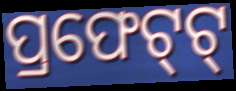
ପ୍ରଫେଟ୍‌ଟ୍